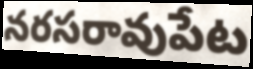
నరసరావుపేట